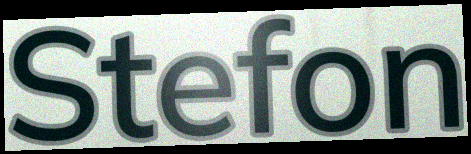
Stefon